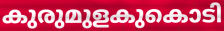
കുരുമുളകുകൊടി